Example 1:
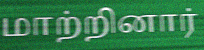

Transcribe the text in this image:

மாற்றினார்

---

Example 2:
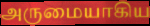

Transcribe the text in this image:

அருமையாகிய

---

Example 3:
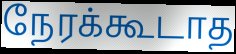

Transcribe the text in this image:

நேரக்கூடாத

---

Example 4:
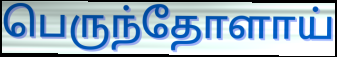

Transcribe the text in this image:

பெருந்தோளாய்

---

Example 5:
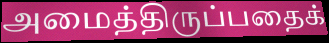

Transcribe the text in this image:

அமைத்திருப்பதைக்